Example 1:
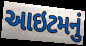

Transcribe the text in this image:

આઇટમનું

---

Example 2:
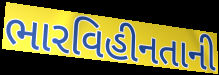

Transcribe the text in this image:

ભારવિહીનતાની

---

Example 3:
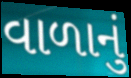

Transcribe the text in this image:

વાળાનું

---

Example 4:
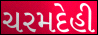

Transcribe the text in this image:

ચરમદેહી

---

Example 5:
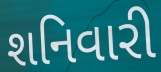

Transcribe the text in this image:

શનિવારી